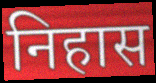
निहास